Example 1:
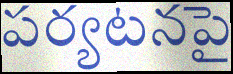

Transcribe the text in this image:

పర్యటనపై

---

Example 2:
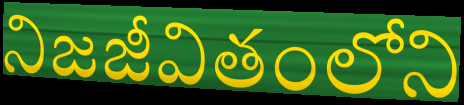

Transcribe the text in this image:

నిజజీవితంలోని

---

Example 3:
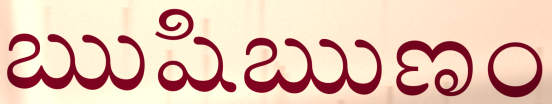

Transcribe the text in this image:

ఋషిఋణం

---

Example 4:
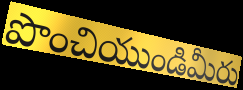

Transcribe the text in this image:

పొంచియుండిమీరు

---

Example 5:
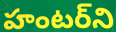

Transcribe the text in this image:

హంటర్‌ని